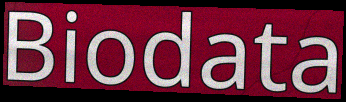
Biodata